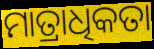
ମାତ୍ରାଧିକତା